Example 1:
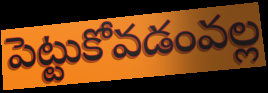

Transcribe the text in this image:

పెట్టుకోవడంవల్ల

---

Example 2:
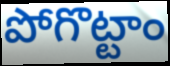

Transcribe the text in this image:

పోగొట్టాం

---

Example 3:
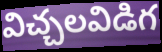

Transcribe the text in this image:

విచ్చలవిడిగ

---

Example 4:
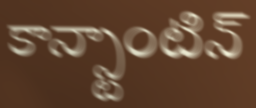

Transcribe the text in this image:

కాన్స్టాంటిన్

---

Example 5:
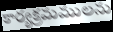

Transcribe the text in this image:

కార్యక్రమములను